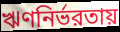
ঋণনির্ভরতায়